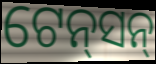
ଟେନ୍‌ସନ୍